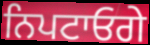
ਨਿਪਟਾਓਗੇ